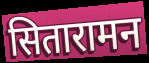
सितारामन